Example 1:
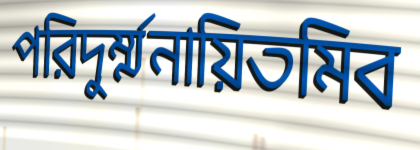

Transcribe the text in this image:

পরিদুর্ম্মনায়িতমিব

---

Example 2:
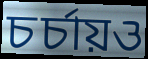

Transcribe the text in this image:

চর্চায়ও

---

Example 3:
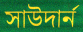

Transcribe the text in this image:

সাউদার্ন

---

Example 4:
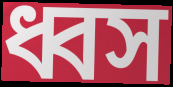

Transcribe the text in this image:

ধ্বস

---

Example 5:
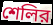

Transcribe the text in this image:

শেলির